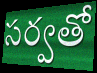
సర్వతో